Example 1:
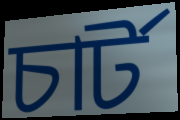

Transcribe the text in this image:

চাৰ্ট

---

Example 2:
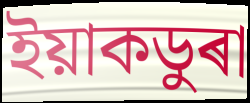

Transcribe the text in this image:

ইয়াকডুৰা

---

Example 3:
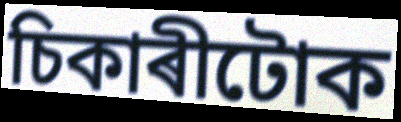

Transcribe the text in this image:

চিকাৰীটোক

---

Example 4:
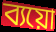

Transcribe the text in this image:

ব্যয়ো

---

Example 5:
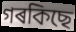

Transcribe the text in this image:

গৰকিছে